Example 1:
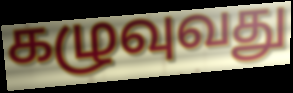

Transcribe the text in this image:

கழுவுவது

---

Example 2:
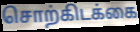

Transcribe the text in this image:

சொற்கிடக்கை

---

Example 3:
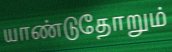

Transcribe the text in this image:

யாண்டுதோறும்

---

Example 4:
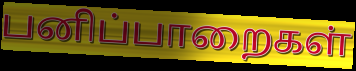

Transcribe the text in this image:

பனிப்பாறைகள்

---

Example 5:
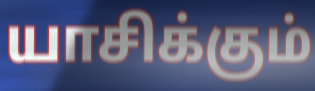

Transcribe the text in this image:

யாசிக்கும்